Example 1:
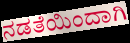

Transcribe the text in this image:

ನಡತೆಯಿಂದಾಗಿ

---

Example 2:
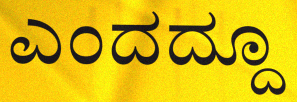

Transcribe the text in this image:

ಎಂದದ್ದೂ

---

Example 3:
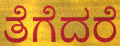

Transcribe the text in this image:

ತೆಗೆದರೆ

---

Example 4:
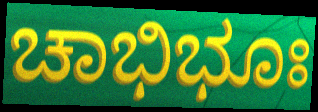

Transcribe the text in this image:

ಚಾಭಿಭೂಃ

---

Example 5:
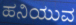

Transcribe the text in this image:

ಹನಿಯುವ